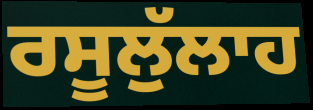
ਰਸੂਲੁੱਲਾਹ